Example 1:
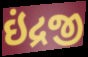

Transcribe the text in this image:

ઇંદ્રજી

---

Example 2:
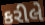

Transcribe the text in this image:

કરીલે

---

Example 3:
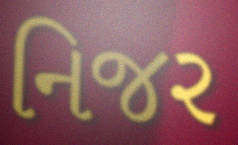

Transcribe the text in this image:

નિજર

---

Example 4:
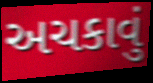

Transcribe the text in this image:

અચકાવું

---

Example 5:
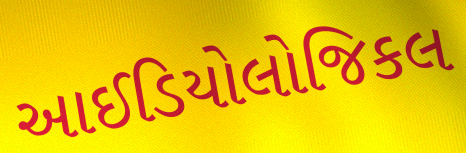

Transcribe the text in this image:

આઈડિયોલોજિકલ